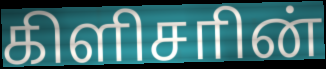
கிளிசரின்